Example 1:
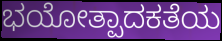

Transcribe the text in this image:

ಭಯೋತ್ಪಾದಕತೆಯ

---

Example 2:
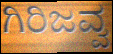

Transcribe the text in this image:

ಗಿರಿಜವ್ವ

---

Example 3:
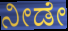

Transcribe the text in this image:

ನೀಡೇ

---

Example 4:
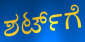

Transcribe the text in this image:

ಶರ್ಟ್‌ಗೆ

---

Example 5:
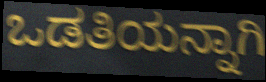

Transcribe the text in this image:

ಒಡತಿಯನ್ನಾಗಿ